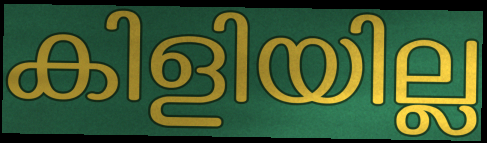
കിളിയില്ല